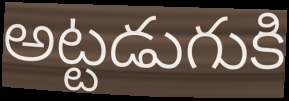
అట్టడుగుకి